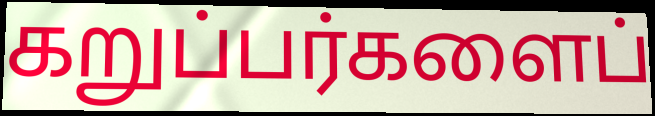
கறுப்பர்களைப்